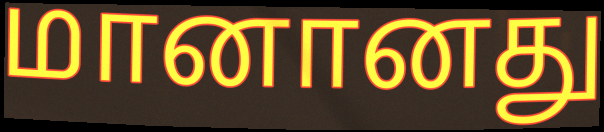
மானானது